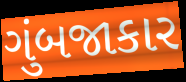
ગુંબજાકાર